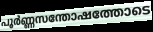
പൂർണ്ണസന്തോഷത്തോടെ